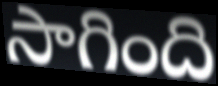
సాగింది